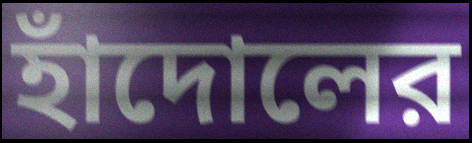
হাঁদোলের